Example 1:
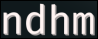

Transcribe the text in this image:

ndhm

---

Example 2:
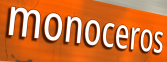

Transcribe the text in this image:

monoceros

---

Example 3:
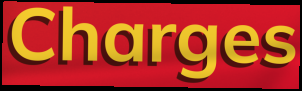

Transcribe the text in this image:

Charges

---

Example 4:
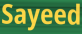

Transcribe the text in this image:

Sayeed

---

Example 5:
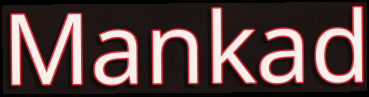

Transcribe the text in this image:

Mankad